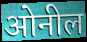
ओनील